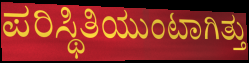
ಪರಿಸ್ಥಿತಿಯುಂಟಾಗಿತ್ತು